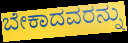
ಬೇಕಾದವರನ್ನು